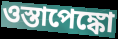
ওস্তাপেঙ্কো